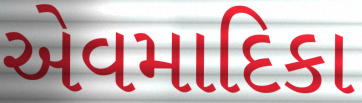
એવમાદિકા